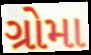
ગ્રોમા